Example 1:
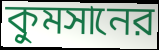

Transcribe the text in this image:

কুমসানের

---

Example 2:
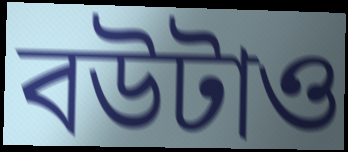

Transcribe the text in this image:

বউটাও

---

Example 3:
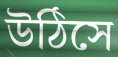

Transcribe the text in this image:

উঠিসে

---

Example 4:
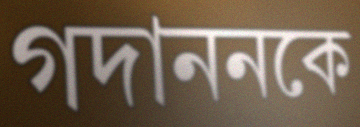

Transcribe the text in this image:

গদাননকে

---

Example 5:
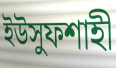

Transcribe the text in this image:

ইউসুফশাহী